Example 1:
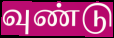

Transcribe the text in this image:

வுண்டு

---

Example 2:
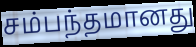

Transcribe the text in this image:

சம்பந்தமானது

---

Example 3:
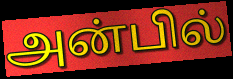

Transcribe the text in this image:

அன்பில்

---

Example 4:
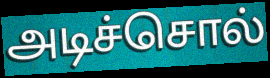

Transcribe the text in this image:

அடிச்சொல்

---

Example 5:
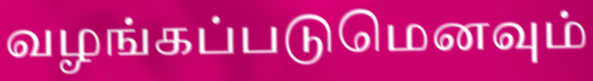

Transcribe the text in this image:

வழங்கப்படுமெனவும்